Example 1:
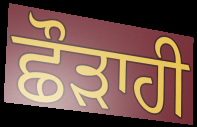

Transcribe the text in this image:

ਛੌੜਾਹੀ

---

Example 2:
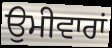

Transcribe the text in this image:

ਉਮੀਵਾਰਾਂ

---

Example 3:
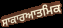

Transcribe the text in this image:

ਸਾਕਾਰਆਤਮਿਕ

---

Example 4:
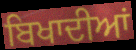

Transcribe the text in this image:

ਬਿਖਾਦੀਆਂ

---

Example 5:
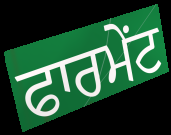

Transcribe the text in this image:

ਫਾਰਮੇਂਟ